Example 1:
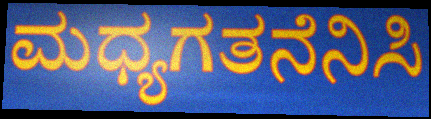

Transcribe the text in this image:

ಮಧ್ಯಗತನೆನಿಸಿ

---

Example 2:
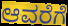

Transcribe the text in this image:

ಆವರೆಗೆ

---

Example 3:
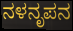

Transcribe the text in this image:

ನಳನೃಪನ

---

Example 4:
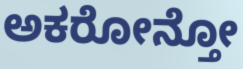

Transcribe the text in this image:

ಅಕರೋನ್ತೋ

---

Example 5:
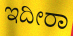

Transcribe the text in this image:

ಇದೀರಾ